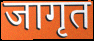
जागृत